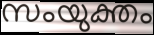
സംയുക്തം